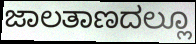
ಜಾಲತಾಣದಲ್ಲೂ